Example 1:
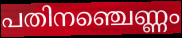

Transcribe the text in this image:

പതിനഞ്ചെണ്ണം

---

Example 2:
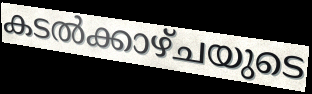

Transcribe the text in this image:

കടൽക്കാഴ്ചയുടെ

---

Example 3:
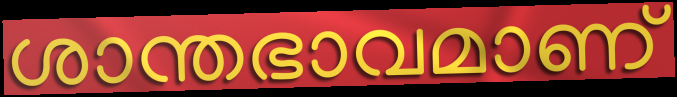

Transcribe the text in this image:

ശാന്തഭാവമാണ്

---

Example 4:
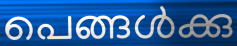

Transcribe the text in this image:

പെങ്ങൾക്കു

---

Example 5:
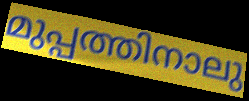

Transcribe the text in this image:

മുപ്പത്തിനാലു